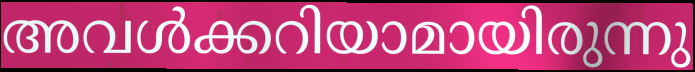
അവൾക്കറിയാമായിരുന്നു